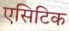
एसिटिक